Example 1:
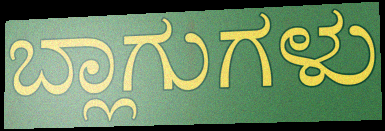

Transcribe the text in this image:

ಬ್ಲಾಗುಗಳು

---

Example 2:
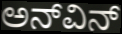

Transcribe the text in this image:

ಅನ್‌ವಿನ್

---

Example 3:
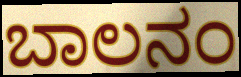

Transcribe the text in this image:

ಬಾಲನಂ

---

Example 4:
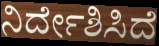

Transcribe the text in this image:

ನಿರ್ದೇಶಿಸಿದೆ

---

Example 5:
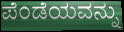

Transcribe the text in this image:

ಪೆಂಡೆಯವನ್ನು